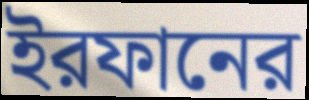
ইরফানের